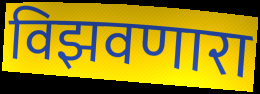
विझवणारा